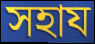
সহায